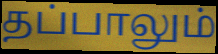
தப்பாலும்